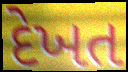
દેખત